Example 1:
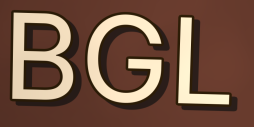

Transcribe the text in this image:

BGL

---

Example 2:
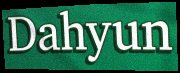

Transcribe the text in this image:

Dahyun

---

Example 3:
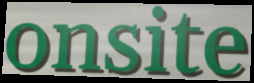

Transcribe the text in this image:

onsite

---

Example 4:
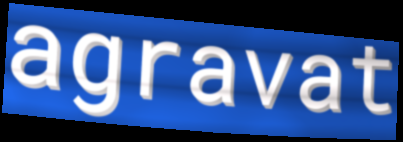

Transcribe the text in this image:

agravat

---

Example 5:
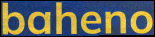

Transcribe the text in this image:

baheno